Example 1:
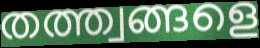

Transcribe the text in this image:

തത്ത്വങ്ങളെ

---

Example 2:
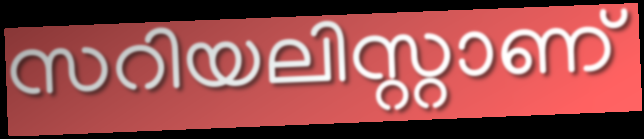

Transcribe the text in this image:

സറിയലിസ്റ്റാണ്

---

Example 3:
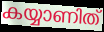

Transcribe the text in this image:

കയ്യാണിത്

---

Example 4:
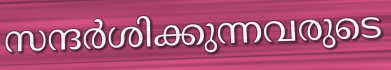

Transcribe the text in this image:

സന്ദർശിക്കുന്നവരുടെ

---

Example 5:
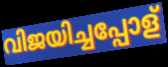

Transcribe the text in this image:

വിജയിച്ചപ്പോള്